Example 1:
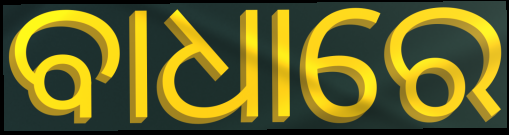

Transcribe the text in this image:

ବାଧାରେ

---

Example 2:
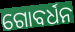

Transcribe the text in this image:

ଗୋବର୍ଧନ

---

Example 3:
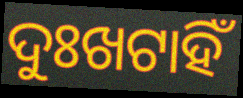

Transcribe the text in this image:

ଦୁଃଖଟାହିଁ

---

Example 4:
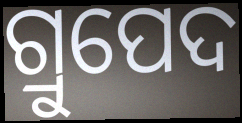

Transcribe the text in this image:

ଗ୍ରୁପେଦ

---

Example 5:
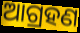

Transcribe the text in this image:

ଆଗ୍ରହଣ